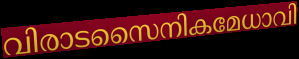
വിരാടസൈനികമേധാവി